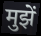
मुझें